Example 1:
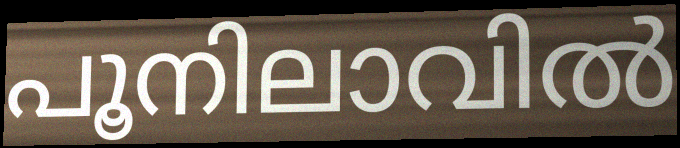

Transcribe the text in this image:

പൂനിലാവിൽ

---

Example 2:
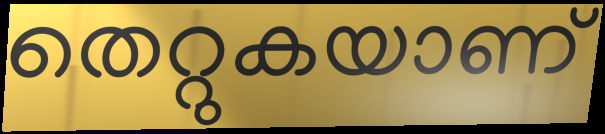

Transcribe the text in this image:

തെറ്റുകയാണ്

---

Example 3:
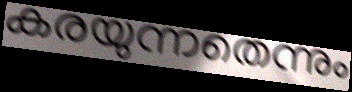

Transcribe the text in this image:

കരയുന്നതെന്നും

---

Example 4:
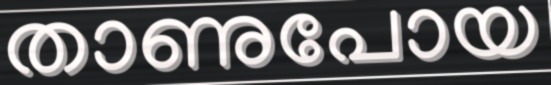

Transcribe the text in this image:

താണുപോയ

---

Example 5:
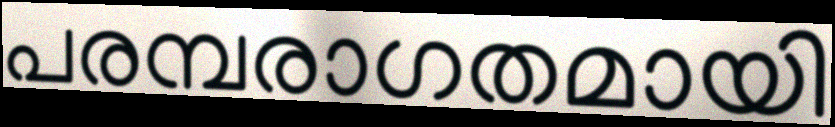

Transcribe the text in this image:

പരമ്പരാഗതമായി